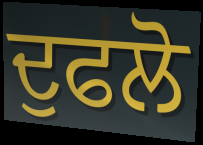
ਦੁਫਲੋ